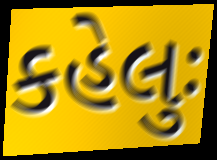
કહેલુઃ